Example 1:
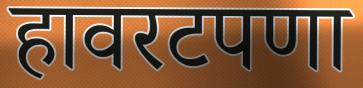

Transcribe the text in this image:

हावरटपणा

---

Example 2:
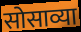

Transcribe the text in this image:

सोसाव्या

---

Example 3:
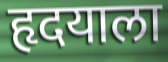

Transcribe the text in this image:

हृदयाला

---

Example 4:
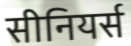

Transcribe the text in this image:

सीनियर्स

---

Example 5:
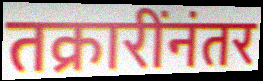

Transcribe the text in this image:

तक्रारींनंतर